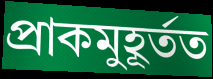
প্ৰাকমুহূৰ্তত